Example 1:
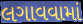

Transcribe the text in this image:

લગાવવામાં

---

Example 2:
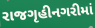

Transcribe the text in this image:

રાજગૃહીનગરીમાં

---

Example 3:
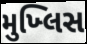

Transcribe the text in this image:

મુખ્લિસ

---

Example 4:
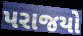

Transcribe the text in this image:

પરાજયો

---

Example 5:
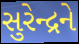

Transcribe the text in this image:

સુરેન્દ્રને